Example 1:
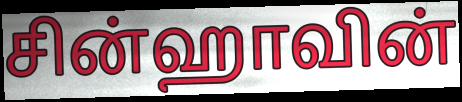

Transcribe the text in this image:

சின்ஹாவின்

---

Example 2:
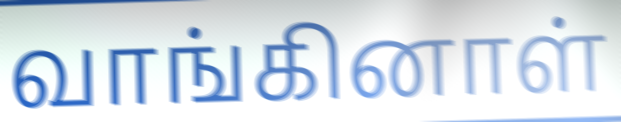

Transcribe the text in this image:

வாங்கினாள்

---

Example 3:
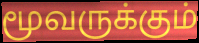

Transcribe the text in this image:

மூவருக்கும்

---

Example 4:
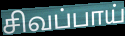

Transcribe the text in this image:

சிவப்பாய்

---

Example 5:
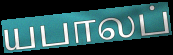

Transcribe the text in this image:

யபாலப்